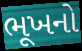
ભૂખનો